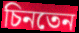
চিনতেন